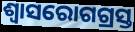
ଶ୍ୱାସରୋଗଗ୍ରସ୍ତ